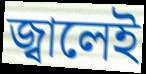
জ্বালেই